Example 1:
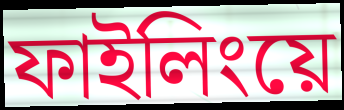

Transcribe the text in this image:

ফাইলিংয়ে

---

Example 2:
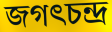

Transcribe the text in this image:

জগৎচন্দ্র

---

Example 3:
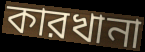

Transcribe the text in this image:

কারখানা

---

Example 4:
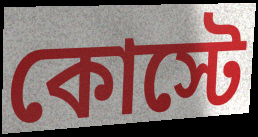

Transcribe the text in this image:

কোস্টে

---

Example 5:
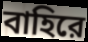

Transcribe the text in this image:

বাহিরে